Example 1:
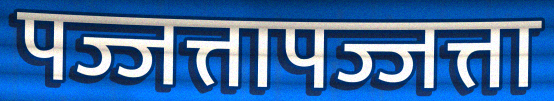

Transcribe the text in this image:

पज्जत्तापज्जत्ता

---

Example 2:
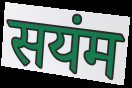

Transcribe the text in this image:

सयंम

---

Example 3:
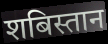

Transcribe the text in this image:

शबिस्तान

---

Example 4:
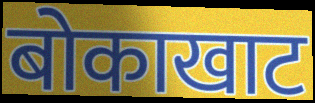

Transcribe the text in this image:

बोकाखाट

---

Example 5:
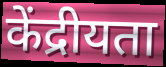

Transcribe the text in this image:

केंद्रीयता